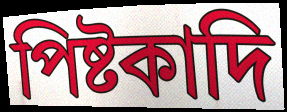
পিষ্টকাদি